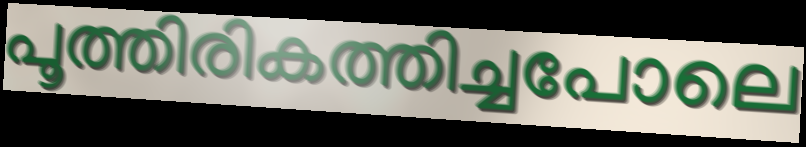
പൂത്തിരികത്തിച്ചപോലെ